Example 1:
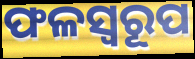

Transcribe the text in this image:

ଫଳସ୍ୱରୂପ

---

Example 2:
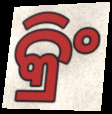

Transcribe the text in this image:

କ୍ରିଂ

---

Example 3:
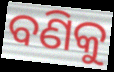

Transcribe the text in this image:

ବଣିକୁ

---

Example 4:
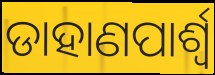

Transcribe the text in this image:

ଡାହାଣପାର୍ଶ୍ୱ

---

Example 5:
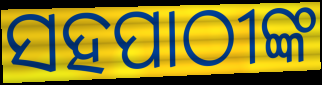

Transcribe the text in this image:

ସହପାଠୀଙ୍କ